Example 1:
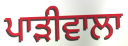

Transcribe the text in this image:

ਪਾੜੀਵਾਲਾ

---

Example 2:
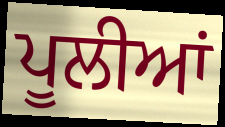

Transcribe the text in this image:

ਪੂਲੀਆਂ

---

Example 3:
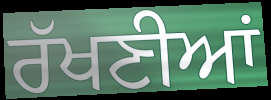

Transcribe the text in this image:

ਰੱਖਣੀਆਂ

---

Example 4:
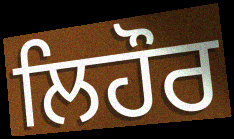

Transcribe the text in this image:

ਲਿਹੌਰ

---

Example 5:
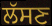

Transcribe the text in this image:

ਲੱਸਣ